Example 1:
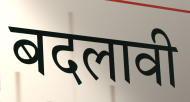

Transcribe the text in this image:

बदलावी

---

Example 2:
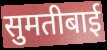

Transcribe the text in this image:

सुमतीबाई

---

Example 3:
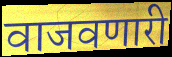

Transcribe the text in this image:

वाजवणारी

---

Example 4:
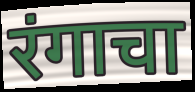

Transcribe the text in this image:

रंगाचा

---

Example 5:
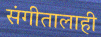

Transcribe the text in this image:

संगीतालाही